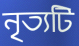
নৃত্যটি